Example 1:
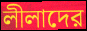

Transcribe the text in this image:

লীলাদের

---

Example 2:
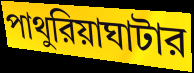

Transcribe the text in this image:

পাথুরিয়াঘাটার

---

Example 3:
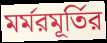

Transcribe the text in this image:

মর্মরমূর্তির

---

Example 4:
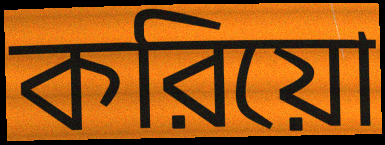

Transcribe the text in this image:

করিয়ো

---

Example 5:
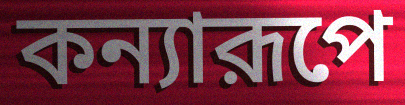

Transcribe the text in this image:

কন্যারূপে